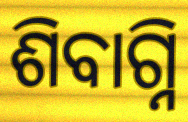
ଶିବାଗ୍ନି